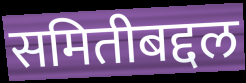
समितीबद्दल